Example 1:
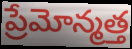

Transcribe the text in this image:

ప్రేమోన్మత్త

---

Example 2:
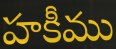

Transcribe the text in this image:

హకీము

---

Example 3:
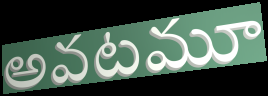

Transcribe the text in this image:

అవటమూ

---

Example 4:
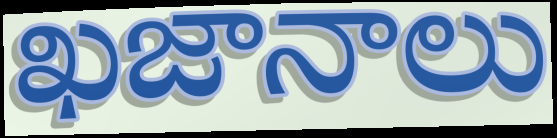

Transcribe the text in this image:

ఖజానాలు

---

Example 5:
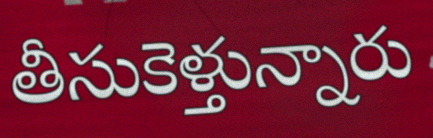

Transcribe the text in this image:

తీసుకెళ్తున్నారు